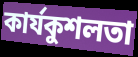
কাৰ্যকুশলতা